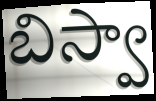
బిస్వా